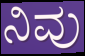
ನಿವು